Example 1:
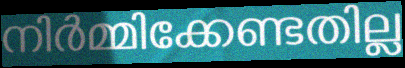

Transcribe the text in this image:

നിർമ്മിക്കേണ്ടതില്ല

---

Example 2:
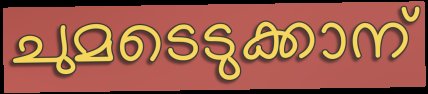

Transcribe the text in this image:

ചുമടെടുക്കാന്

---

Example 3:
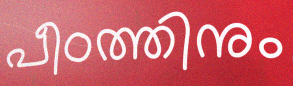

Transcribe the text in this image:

പീഠത്തിനും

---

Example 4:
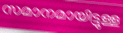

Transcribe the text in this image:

സമാനമായിട്ടുള്ള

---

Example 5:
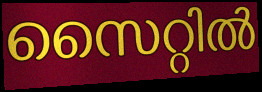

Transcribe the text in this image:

സൈറ്റിൽ